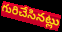
గురిచేసినట్లు